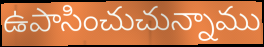
ఉపాసించుచున్నాము